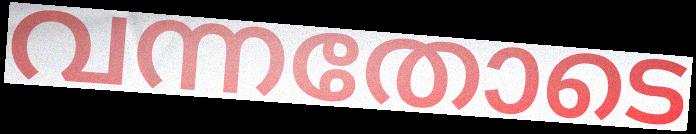
വന്നതോടെ